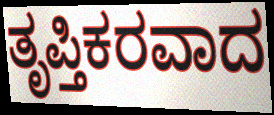
ತೃಪ್ತಿಕರವಾದ